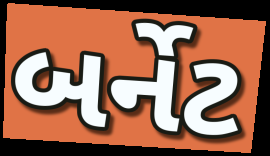
બર્નેટ